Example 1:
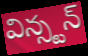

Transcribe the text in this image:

విన్స్టన్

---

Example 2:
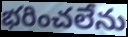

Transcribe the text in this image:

భరించలేను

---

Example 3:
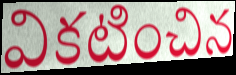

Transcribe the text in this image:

వికటించిన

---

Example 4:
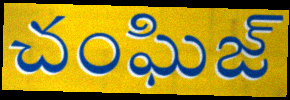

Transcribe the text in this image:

చంఘిజ్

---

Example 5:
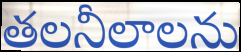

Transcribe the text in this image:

తలనీలాలను